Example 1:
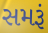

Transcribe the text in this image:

સમરૂં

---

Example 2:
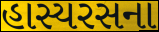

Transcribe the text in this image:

હાસ્યરસના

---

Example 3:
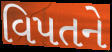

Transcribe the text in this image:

વિપતને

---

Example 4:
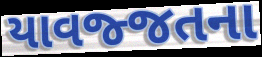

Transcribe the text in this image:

યાવજ્જતના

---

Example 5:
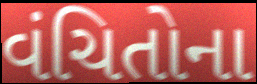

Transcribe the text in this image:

વંચિતોના